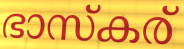
ഭാസ്കര്